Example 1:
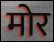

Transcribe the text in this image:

मोर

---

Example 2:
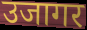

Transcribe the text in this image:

उजागर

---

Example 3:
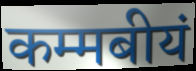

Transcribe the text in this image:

कम्मबीयं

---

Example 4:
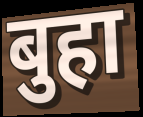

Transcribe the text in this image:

बुहा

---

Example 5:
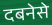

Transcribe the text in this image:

दबनेसे